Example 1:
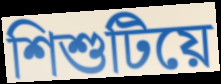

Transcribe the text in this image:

শিশুটিয়ে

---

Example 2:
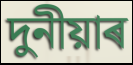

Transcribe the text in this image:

দুনীয়াৰ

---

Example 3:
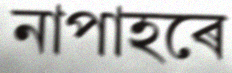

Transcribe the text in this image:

নাপাহৰে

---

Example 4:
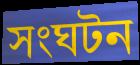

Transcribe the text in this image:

সংঘটন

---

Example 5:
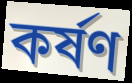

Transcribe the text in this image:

কৰ্ষণ